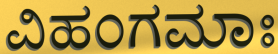
ವಿಹಂಗಮಾಃ